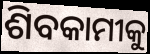
ଶିବକାମୀକୁ